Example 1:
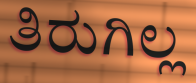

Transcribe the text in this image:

ತಿರುಗಿಲ್ಲ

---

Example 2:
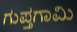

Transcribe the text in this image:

ಗುಪ್ತಗಾಮಿ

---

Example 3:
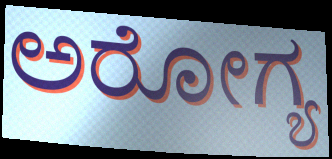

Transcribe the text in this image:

ಅರೋಗ್ಯ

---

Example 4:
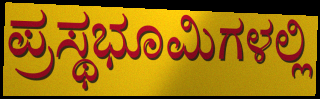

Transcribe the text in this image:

ಪ್ರಸ್ಥಭೂಮಿಗಳಲ್ಲಿ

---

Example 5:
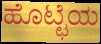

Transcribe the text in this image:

ಹೊಟ್ಟೆಯ